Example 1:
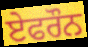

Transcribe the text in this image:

ਏਫਰੌਨ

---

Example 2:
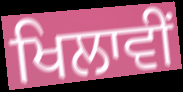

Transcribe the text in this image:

ਖਿਲਾਵੀਂ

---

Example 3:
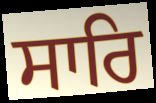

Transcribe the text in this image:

ਸਾਰਿ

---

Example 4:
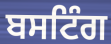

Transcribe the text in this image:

ਬਸਟਿੰਗ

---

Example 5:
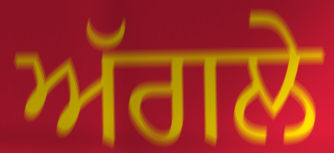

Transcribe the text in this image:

ਅੱਗਲੇ